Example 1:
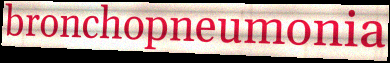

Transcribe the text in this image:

bronchopneumonia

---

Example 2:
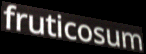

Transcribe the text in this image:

fruticosum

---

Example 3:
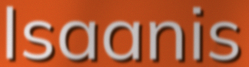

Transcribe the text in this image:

Isaanis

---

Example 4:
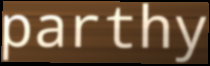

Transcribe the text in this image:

parthy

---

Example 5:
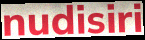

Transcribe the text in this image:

nudisiri